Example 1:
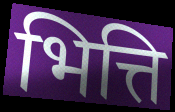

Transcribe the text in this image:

भित्ति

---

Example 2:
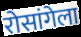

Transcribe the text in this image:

रोसांगेला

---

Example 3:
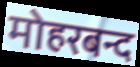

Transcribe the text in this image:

मोहरबन्द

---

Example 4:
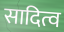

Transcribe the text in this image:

सादित्व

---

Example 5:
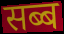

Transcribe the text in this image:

सब्ब